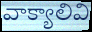
వాక్యాలివి